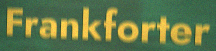
Frankforter